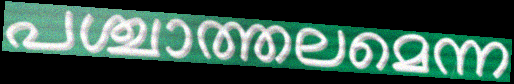
പശ്ചാത്തലമെന്ന